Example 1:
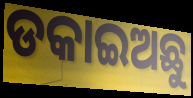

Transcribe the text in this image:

ଡକାଇଅଛୁ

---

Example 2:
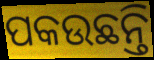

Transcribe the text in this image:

ପକଉଛନ୍ତି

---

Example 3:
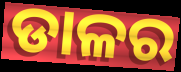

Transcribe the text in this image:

ଡାଳର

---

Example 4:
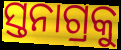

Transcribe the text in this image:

ସ୍ତନାଗ୍ରକୁ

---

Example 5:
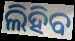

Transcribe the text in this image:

ଲିହିବ